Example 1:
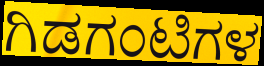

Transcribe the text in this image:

ಗಿಡಗಂಟಿಗಳ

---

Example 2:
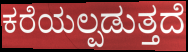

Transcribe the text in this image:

ಕರೆಯಲ್ಪಡುತ್ತದೆ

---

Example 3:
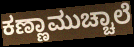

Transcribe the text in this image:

ಕಣ್ಣಾಮುಚ್ಚಾಲೆ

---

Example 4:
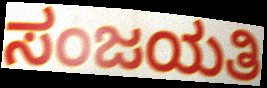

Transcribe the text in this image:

ಸಂಜಯತಿ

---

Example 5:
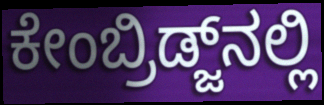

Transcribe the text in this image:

ಕೇಂಬ್ರಿಡ್ಜ್‌ನಲ್ಲಿ